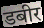
डबीर